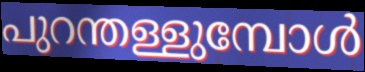
പുറന്തള്ളുമ്പോൾ